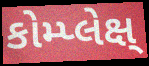
કોમ્પ્લેક્ષ્